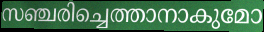
സഞ്ചരിച്ചെത്താനാകുമോ